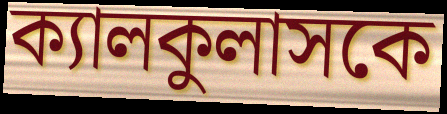
ক্যালকুলাসকে